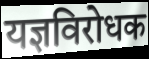
यज्ञविरोधक